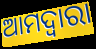
ଆମଦ୍ୱାରା